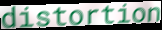
distortion